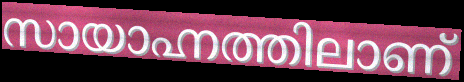
സായാഹ്നത്തിലാണ്